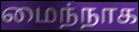
மைந்நாக